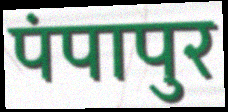
पंपापुर